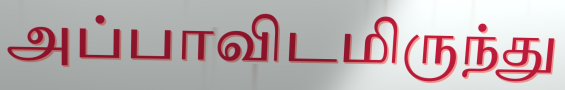
அப்பாவிடமிருந்து